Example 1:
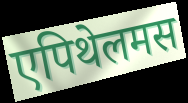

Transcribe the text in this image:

एपिथेलमस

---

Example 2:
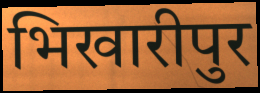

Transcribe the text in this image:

भिखारीपुर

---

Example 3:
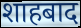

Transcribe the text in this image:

शाहबाद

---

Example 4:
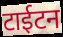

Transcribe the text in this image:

टाईटन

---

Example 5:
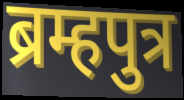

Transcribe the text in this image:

ब्रम्हपुत्र